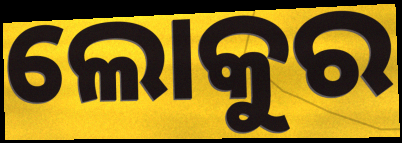
ଲୋକୁର